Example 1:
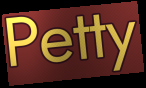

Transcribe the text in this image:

Petty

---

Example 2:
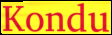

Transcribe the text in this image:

Kondu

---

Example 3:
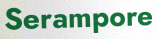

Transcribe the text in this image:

Serampore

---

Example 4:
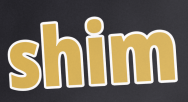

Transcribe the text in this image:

shim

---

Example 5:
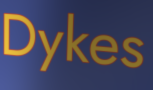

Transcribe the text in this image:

Dykes